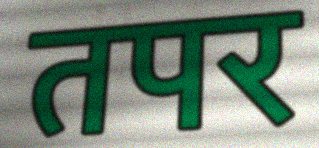
तपर